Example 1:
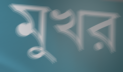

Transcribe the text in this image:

মুখর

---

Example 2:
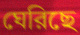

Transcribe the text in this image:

ঘেরিছে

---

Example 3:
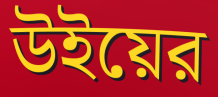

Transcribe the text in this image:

উইয়ের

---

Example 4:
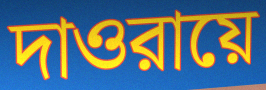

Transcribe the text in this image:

দাওরায়ে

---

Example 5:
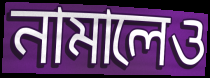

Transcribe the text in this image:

নামালেও